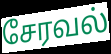
சேரவல்